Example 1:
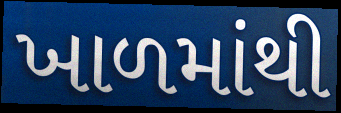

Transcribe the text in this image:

ખાળમાંથી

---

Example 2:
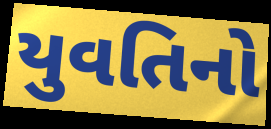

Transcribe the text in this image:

યુવતિનો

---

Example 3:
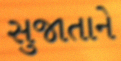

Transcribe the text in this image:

સુજાતાને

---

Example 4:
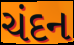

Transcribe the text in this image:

ચંદન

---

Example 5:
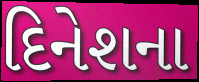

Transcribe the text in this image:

દિનેશના